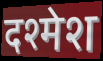
दश्मेश